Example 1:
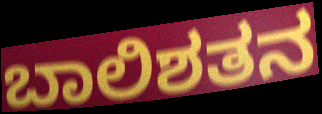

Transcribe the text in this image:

ಬಾಲಿಶತನ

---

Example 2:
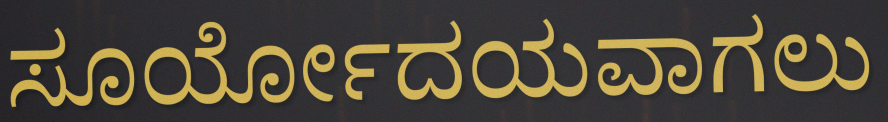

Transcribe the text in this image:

ಸೂರ್ಯೋದಯವಾಗಲು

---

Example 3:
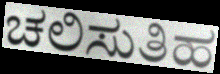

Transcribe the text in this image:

ಚಲಿಸುತಿಹ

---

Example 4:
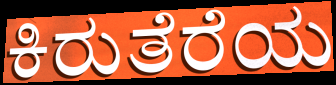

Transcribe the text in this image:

ಕಿರುತೆರೆಯ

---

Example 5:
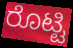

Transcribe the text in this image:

ರೊಟ್ಟಿ